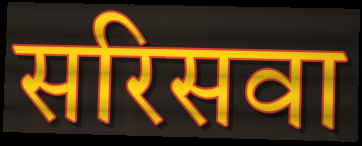
सरिसवा